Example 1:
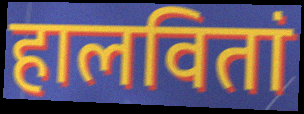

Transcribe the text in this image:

हालवितां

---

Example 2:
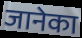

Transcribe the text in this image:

जानेका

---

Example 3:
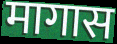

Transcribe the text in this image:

मागास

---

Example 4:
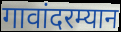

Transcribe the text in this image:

गावांदरम्यान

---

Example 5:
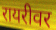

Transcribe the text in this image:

रायरीवर